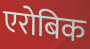
एरोबिक